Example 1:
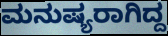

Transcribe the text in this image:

ಮನುಷ್ಯರಾಗಿದ್ದ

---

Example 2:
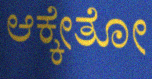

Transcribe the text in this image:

ಆಕ್ಕೇತೋ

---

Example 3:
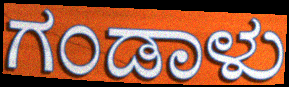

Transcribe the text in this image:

ಗಂಡಾಳು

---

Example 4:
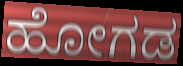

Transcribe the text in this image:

ಹೋಗಡ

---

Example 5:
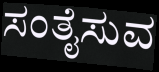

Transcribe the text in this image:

ಸಂತೈಸುವ